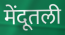
मेंदूतली